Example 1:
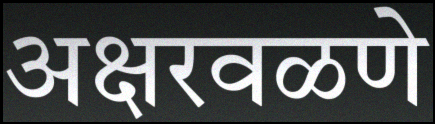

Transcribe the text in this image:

अक्षरवळणे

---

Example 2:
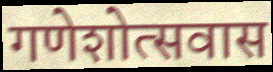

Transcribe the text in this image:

गणेशोत्सवास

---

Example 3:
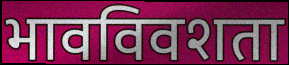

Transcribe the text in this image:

भावविवशता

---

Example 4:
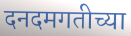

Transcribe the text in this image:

दनदमगतीच्या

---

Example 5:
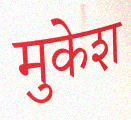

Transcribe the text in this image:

मुकेश